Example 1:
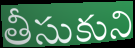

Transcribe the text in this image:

తీసుకుని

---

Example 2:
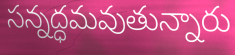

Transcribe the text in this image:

సన్నద్ధమవుతున్నారు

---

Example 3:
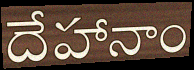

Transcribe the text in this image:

దేహానాం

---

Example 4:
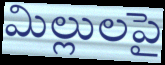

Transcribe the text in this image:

మిల్లులపై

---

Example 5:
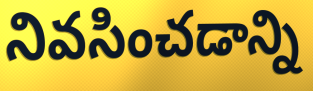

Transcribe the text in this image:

నివసించడాన్ని